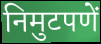
निमुटपणें